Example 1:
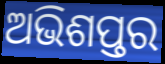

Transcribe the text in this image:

ଅଭିଶପ୍ତର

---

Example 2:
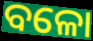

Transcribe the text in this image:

ବଳୋ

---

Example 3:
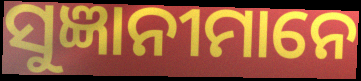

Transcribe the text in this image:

ସୁଜ୍ଞାନୀମାନେ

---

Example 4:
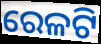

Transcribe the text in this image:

ରେଳଟି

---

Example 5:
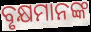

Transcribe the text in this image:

ବୃକ୍ଷମାନଙ୍କ